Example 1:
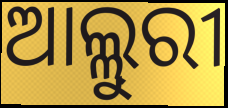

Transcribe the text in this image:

ଆଲ୍ଲୁରୀ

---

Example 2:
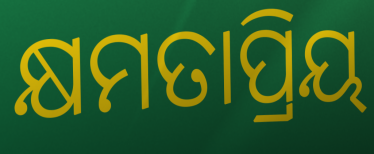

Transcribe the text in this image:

କ୍ଷମତାପ୍ରିୟ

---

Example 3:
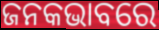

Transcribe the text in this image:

ଜନକଭାବରେ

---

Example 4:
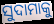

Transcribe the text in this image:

ସୁଦାମାକୁ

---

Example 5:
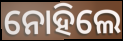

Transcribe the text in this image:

ନୋହିଲେ